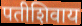
पतीशिवाय